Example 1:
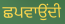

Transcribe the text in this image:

ਛਪਵਾਉਂਦੀ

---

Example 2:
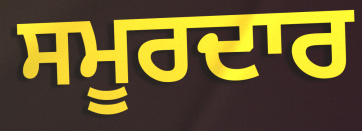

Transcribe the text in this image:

ਸਮੂਰਦਾਰ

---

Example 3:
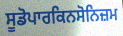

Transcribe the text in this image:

ਸੂਡੋਪਾਰਕਿਨਸੋਨਿਜ਼ਮ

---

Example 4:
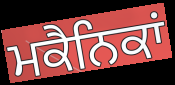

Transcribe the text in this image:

ਮਕੈਨਿਕਾਂ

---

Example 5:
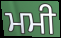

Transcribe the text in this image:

ਮਮੀ